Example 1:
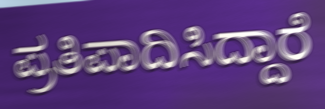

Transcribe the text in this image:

ಪ್ರತಿಪಾದಿಸಿದ್ದಾರೆ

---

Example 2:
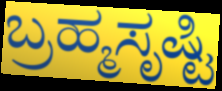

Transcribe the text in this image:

ಬ್ರಹ್ಮಸೃಷ್ಟಿ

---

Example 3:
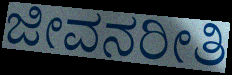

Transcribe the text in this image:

ಜೀವನರೀತಿ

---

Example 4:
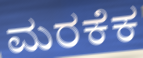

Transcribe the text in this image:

ಮರಕೆಕ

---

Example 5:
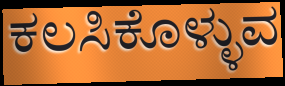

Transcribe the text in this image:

ಕಲಸಿಕೊಳ್ಳುವ